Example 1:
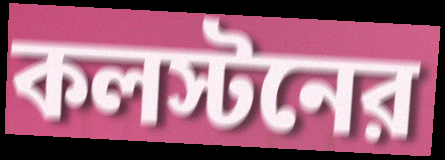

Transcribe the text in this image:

কলস্টনের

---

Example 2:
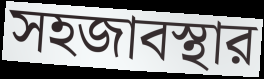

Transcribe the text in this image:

সহজাবস্থার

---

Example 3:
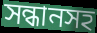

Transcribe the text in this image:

সন্ধানসহ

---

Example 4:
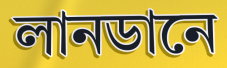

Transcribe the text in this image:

লানডানে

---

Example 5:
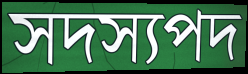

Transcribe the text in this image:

সদস্যপদ